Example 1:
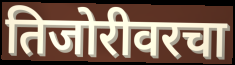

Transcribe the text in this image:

तिजोरीवरचा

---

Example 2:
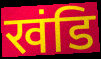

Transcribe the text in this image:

खंडि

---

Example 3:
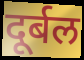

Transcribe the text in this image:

दूर्बल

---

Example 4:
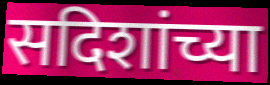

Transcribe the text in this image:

सदिशांच्या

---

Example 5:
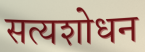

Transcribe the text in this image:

सत्यशोधन